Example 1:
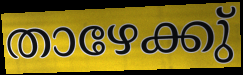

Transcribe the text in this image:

താഴേക്കു്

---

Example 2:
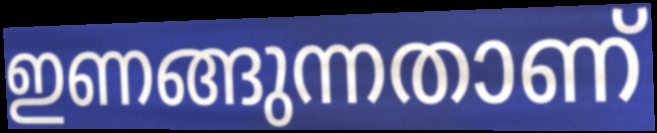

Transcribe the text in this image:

ഇണങ്ങുന്നതാണ്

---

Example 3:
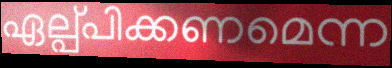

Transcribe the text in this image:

ഏല്പ്പിക്കണമെന്ന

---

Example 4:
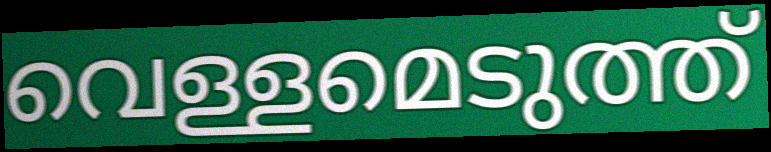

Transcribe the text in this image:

വെള്ളമെടുത്ത്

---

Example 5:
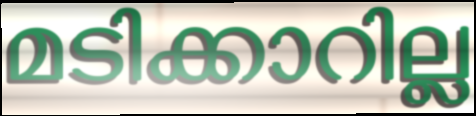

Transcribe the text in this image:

മടിക്കാറില്ല